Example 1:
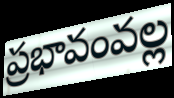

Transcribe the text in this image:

ప్రభావంవల్ల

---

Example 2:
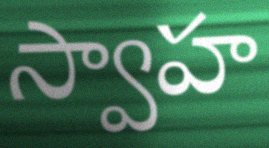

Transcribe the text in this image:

స్వాహ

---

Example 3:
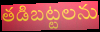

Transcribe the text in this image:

తడిబట్టలను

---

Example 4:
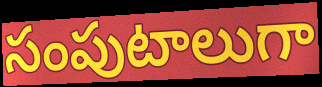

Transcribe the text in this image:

సంపుటాలుగా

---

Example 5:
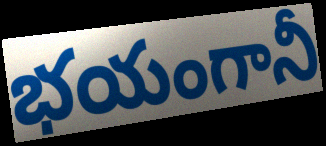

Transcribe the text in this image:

భయంగానీ